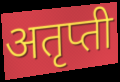
अतृप्ती